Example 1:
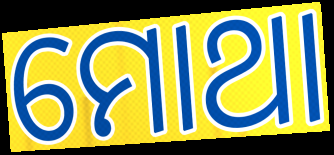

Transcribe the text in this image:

ମୋଥା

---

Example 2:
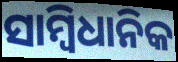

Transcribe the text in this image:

ସାମ୍ବିଧାନିକ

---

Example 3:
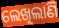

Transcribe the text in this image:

ଲେଖିଲାଣି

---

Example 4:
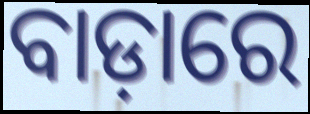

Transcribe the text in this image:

ବାଡ଼ାରେ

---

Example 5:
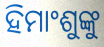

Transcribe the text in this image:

ହିମାଂଶୁଙ୍କୁ